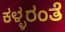
ಕಳ್ಳರಂತೆ